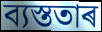
ব্যস্ততাৰ